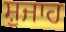
ਸ਼ੁਜਾਹ